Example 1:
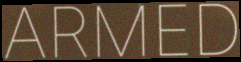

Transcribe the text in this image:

ARMED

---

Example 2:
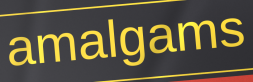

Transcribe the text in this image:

amalgams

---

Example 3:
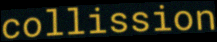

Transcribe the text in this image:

collission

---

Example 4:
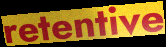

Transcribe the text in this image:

retentive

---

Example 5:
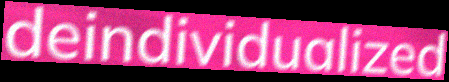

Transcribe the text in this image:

deindividualized